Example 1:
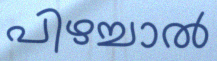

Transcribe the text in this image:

പിഴച്ചാൽ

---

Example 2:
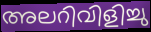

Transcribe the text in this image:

അലറിവിളിച്ചു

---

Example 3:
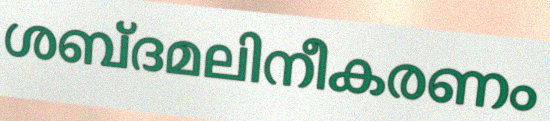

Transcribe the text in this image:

ശബ്ദമലിനീകരണം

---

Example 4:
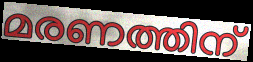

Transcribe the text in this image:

മരണത്തിന്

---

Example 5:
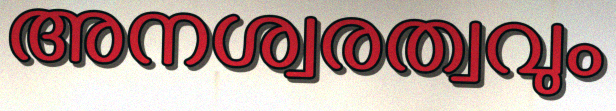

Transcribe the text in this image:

അനശ്വരത്വവും